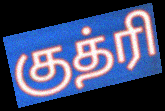
குத்ரி